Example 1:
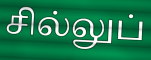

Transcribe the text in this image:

சில்லுப்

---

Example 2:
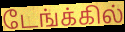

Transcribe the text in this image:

டேங்க்கில்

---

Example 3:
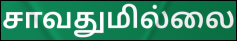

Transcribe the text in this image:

சாவதுமில்லை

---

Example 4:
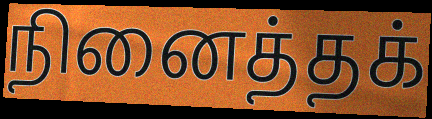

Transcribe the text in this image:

நினைத்தக்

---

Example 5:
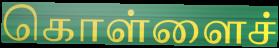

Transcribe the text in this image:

கொள்ளைச்